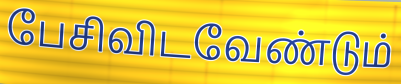
பேசிவிடவேண்டும்